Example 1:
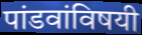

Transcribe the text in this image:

पांडवांविषयी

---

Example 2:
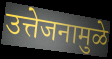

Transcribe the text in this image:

उत्तेजनामुळे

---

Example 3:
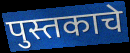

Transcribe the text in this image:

पुस्तकाचे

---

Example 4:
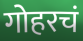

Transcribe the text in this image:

गोहरचं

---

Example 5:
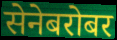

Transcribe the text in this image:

सेनेबरोबर